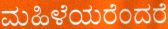
ಮಹಿಳೆಯರೆಂದರೆ